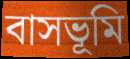
বাসভূমি